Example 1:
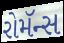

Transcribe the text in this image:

રોમૅન્સ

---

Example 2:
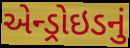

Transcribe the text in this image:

એન્ડ્રોઇડનું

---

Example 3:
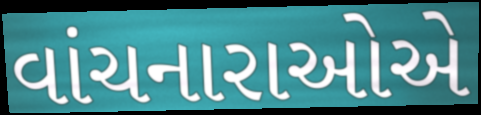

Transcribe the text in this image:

વાંચનારાઓએ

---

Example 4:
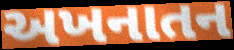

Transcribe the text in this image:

અખનાતન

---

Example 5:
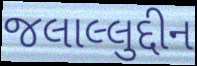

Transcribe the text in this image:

જલાલ્લુદ્દીન